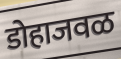
डोहाजवळ